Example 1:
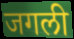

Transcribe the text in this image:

जगली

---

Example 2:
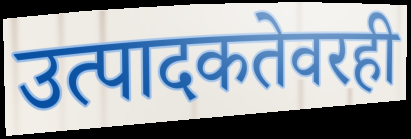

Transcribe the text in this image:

उत्पादकतेवरही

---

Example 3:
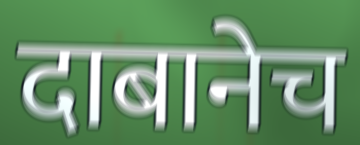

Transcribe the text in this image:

दाबानेच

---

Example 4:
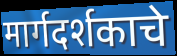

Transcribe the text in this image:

मार्गदर्शकाचे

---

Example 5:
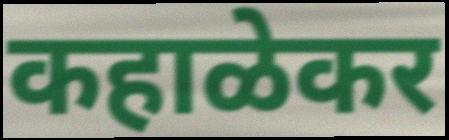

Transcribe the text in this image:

कहाळेकर